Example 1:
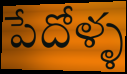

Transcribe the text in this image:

పేదోళ్ళ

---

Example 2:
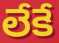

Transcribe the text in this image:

లేకే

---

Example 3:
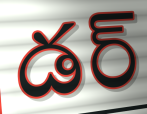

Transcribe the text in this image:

డర్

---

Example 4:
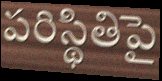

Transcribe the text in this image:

పరిస్థితిపై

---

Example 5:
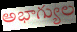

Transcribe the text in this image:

అభాగ్యుల